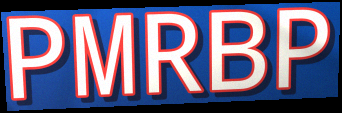
PMRBP